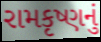
રામકૃષ્ણનું